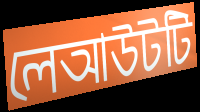
লেআউটটি